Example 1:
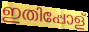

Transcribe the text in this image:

ഇതിപ്പോള്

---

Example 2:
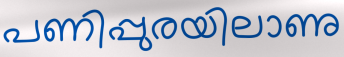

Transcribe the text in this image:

പണിപ്പുരയിലാണു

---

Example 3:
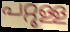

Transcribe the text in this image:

പറ്റുള്ള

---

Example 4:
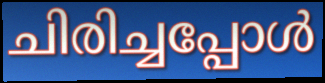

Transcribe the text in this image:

ചിരിച്ചപ്പോൾ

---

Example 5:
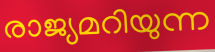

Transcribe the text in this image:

രാജ്യമറിയുന്ന